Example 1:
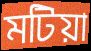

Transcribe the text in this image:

মটিয়া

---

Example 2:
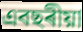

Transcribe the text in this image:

এবছৰীয়া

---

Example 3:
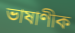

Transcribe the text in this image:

ভাষাণীক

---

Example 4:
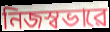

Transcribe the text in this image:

নিজস্বভাৱে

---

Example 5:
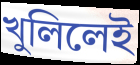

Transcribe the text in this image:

খুলিলেই